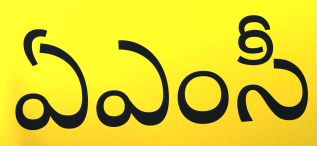
ఏఎంసీ